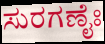
ಸುರಗಣೈಃ